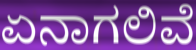
ಏನಾಗಲಿವೆ